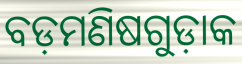
ବଡ଼ମଣିଷଗୁଡ଼ାକ